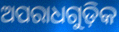
ଅପରାଧଗୁଡ଼ିକ